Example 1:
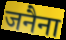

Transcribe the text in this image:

जनैना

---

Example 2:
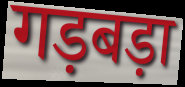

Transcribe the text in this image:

गड़बड़ा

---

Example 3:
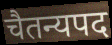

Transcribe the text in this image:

चैतन्यपद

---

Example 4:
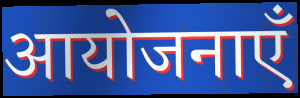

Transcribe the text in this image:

आयोजनाएँ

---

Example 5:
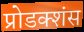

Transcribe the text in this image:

प्रोडक्शंस